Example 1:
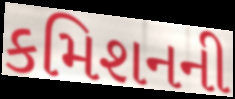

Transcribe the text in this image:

કમિશનની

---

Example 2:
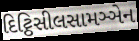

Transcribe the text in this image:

દિટ્ઠિસીલસામઞ્ઞેન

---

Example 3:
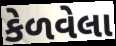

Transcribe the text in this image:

કેળવેલા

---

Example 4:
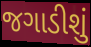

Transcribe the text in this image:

જગાડીશું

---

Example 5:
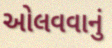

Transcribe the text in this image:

ઓલવવાનું